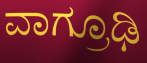
ವಾಗ್ರೂಢಿ